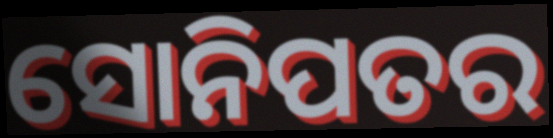
ସୋନିପତର